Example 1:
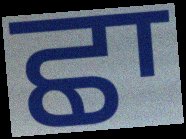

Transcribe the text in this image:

ਛਾ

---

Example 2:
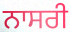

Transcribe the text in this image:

ਨਾਸਰੀ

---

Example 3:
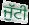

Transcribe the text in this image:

ਜੁੱਟੀ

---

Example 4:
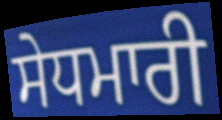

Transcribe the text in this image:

ਸੇਧਮਾਰੀ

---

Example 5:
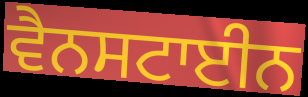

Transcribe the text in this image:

ਵੈਨਸਟਾਈਨ